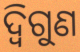
ଦ୍ୱିଗୁଣ